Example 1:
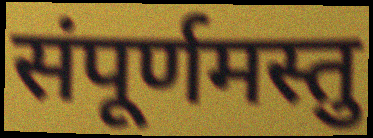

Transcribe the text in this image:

संपूर्णमस्तु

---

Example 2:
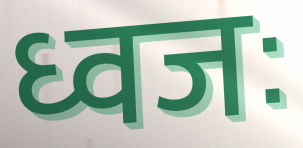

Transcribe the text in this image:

ध्वजः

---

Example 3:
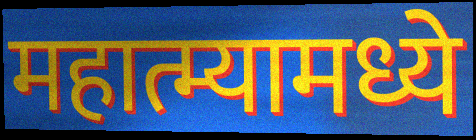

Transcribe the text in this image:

महात्म्यामध्ये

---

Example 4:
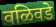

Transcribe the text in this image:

वळिवडे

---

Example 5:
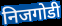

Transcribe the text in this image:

निजगोडी